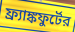
ফ্র্যাঙ্কফুর্টের